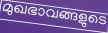
മുഖഭാവങ്ങളുടെ